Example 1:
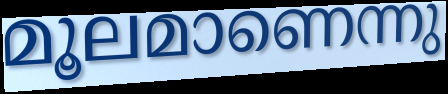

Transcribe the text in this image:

മൂലമാണെന്നു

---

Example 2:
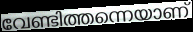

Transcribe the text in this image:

വേണ്ടിത്തന്നെയാണ്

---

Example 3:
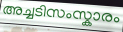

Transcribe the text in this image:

അച്ചടിസംസ്കാരം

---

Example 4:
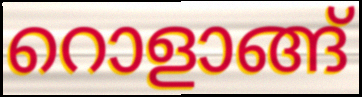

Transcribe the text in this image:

റൊളാങ്ങ്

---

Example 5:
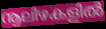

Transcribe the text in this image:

നൂലിഴകളിൽ